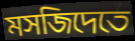
মসজিদেতে